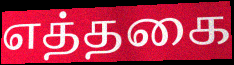
எத்தகை